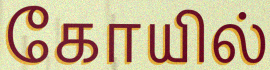
கோயில்